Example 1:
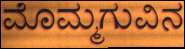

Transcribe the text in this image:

ಮೊಮ್ಮಗುವಿನ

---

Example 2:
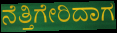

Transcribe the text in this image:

ನೆತ್ತಿಗೇರಿದಾಗ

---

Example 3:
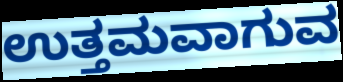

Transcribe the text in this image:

ಉತ್ತಮವಾಗುವ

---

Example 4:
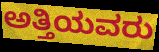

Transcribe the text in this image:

ಅತ್ತಿಯವರು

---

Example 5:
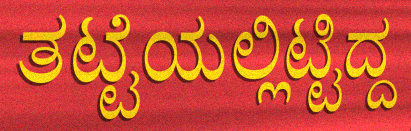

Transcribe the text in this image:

ತಟ್ಟೆಯಲ್ಲಿಟ್ಟಿದ್ದ